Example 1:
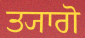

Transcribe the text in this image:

ਤ੍ਯਾਗੋ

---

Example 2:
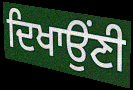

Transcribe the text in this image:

ਦਿਖਾਉਂਣੀ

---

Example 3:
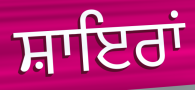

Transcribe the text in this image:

ਸ਼ਾਇਰਾਂ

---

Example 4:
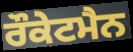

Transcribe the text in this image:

ਰੌਕੇਟਮੈਨ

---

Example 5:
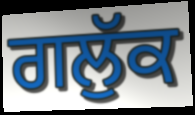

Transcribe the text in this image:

ਗਲੁੱਕ